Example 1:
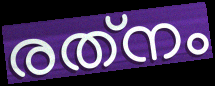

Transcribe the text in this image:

രത്‌നം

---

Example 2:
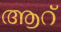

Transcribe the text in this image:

ആറ്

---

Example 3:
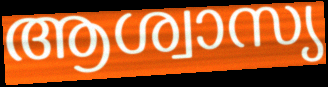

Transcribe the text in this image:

ആശ്വാസ്യ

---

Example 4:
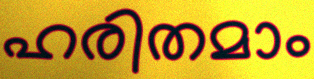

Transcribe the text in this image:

ഹരിതമാം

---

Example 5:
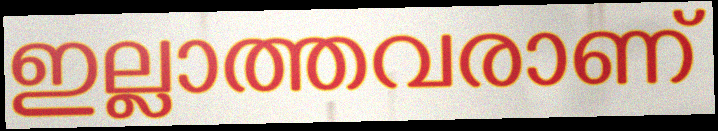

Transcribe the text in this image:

ഇല്ലാത്തവരാണ്